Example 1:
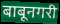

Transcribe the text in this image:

बाबूनगरी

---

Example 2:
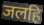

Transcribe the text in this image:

जलहि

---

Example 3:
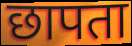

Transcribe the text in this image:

छापता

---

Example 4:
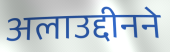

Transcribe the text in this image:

अलाउद्दीनने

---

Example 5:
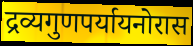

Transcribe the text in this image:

द्रव्यगुणपर्यायनोरास